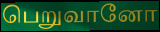
பெறுவானோ